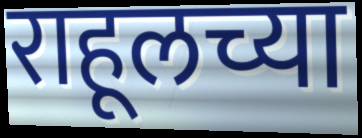
राहूलच्या